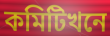
কমিটিখনে